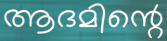
ആദമിന്റെ